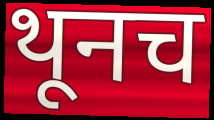
थूनच